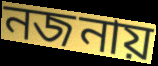
নজনায়